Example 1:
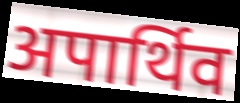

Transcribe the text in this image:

अपार्थिव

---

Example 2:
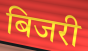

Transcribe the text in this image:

बिजरी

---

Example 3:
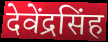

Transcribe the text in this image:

देवेंद्रसिंह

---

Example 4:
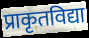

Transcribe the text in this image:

प्राकृतविद्या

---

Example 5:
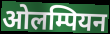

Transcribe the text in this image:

ओलम्पियन